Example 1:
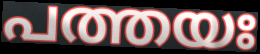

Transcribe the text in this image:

പത്തയഃ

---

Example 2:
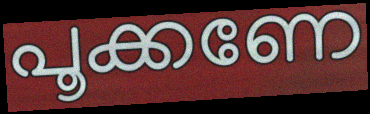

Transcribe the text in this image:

പൂക്കണേ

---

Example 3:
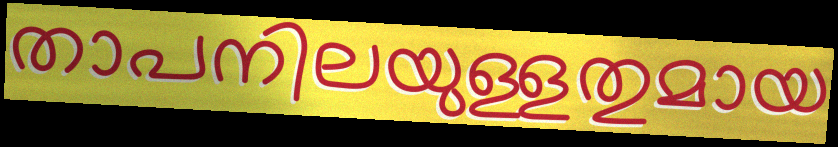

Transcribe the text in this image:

താപനിലയുള്ളതുമായ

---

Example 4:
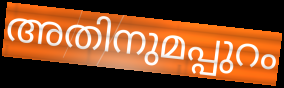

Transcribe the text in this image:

അതിനുമപ്പുറം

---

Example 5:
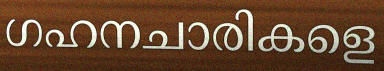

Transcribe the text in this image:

ഗഹനചാരികളെ